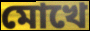
মোখে